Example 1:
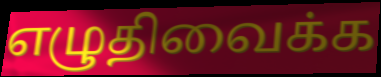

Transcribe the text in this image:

எழுதிவைக்க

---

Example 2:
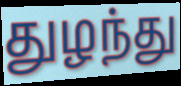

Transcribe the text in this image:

துழந்து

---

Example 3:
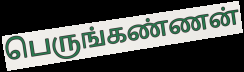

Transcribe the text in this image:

பெருங்கண்ணன்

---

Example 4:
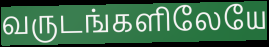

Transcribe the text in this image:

வருடங்களிலேயே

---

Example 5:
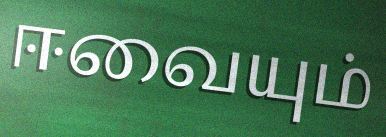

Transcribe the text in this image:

ஈவையும்